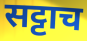
सट्टाच